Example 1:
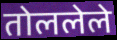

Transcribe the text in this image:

तोललेले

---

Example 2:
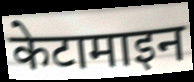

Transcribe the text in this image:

केटामाइन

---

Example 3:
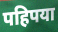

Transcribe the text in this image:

पहिपया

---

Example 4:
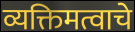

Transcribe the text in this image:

व्यक्तिमत्वाचे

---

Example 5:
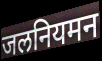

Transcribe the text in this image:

जलनियमन